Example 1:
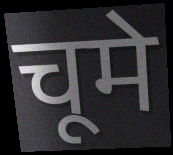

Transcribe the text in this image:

चूमे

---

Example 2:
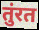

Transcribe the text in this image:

तुंरत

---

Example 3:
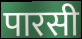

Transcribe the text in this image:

पारसी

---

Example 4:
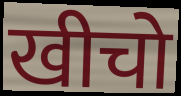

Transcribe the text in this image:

खीचो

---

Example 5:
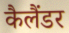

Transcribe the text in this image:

कैलैंडर